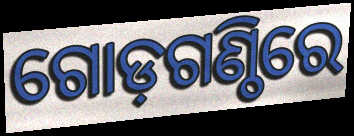
ଗୋଡ଼ଗଣ୍ଠିରେ